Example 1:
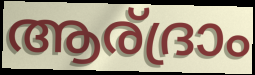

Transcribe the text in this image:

ആര്ദ്രാം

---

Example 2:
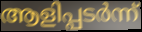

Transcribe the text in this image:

ആളിപ്പടർന്ന്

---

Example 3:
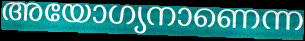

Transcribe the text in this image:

അയോഗ്യനാണെന്ന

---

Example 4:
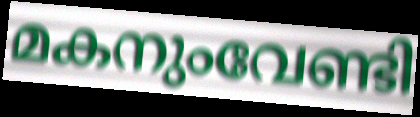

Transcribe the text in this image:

മകനുംവേണ്ടി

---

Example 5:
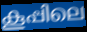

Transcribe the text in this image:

കൂപ്പിലെ